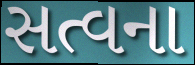
સત્વના